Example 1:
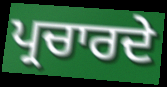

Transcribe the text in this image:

ਪ੍ਰਚਾਰਦੇ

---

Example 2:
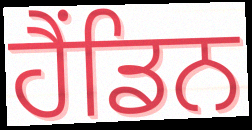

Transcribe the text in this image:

ਹੈਂਡਿਨ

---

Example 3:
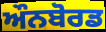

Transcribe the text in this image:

ਔਨਬੋਰਡ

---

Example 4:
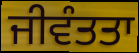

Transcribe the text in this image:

ਜੀਵੰਤਤਾ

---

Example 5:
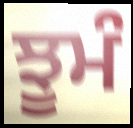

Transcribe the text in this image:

ਝੂਮੰ